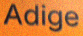
Adige